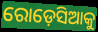
ରୋଡ଼େସିଆକୁ